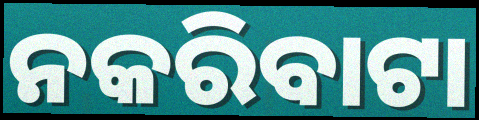
ନକରିବାଟା